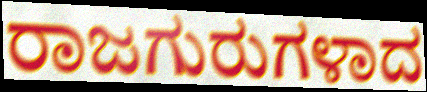
ರಾಜಗುರುಗಳಾದ